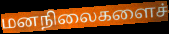
மனநிலைகளைச்